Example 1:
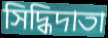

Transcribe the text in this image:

সিদ্ধিদাতা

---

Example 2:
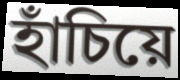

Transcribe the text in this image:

হাঁচিয়ে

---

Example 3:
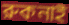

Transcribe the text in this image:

রুকনাই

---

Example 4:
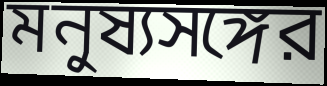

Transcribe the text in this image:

মনুষ্যসঙ্গের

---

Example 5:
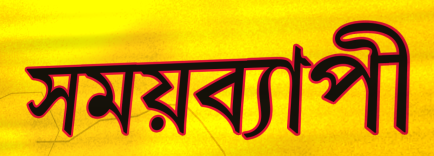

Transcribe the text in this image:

সময়ব্যাপী